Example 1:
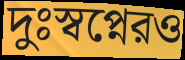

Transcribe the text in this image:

দুঃস্বপ্নেরও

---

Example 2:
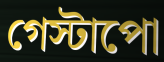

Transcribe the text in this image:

গেস্টাপো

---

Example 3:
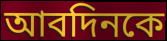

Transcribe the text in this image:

আবদিনকে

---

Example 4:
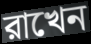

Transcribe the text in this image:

রাখেন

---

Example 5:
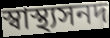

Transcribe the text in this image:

স্বাস্থ্যসনদ